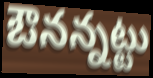
ఔనన్నట్టు